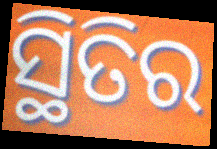
ସ୍ଥିତିର